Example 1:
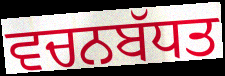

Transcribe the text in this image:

ਵਚਨਬੱਧਤ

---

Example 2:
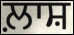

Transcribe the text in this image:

ਲ਼ਾਸ਼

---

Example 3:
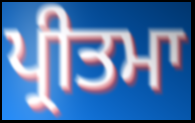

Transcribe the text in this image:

ਪ੍ਰੀਤਮਾ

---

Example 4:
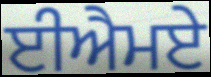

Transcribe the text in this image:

ਈਐਮਏ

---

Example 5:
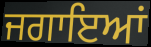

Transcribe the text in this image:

ਜਗਾਇਆਂ